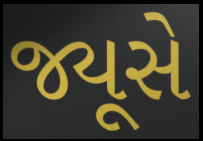
જ્યૂસે